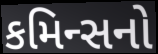
કમિન્સનો